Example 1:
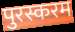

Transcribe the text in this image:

पुरस्करम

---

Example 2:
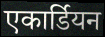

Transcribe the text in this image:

एकार्डियन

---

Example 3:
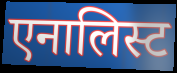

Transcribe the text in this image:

एनालिस्ट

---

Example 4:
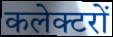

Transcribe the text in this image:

कलेक्टरों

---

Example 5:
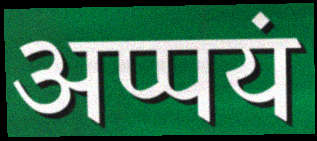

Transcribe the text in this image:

अप्पयं